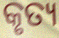
କୃତ୍ଯ